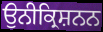
ਉਨੀਕ੍ਰਿਸ਼ਨਨ